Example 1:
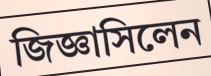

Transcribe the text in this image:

জিজ্ঞাসিলেন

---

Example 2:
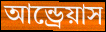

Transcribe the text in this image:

আন্ড্রেয়াস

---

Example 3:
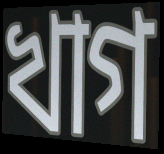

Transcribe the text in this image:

খাগ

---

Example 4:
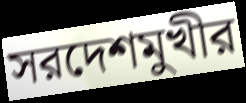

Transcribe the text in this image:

সরদেশমুখীর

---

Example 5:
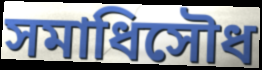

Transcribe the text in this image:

সমাধিসৌধ